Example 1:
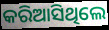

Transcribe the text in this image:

କରିଆସିଥିଲେ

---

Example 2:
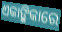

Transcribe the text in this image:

ଏକାଙ୍କିକାରେ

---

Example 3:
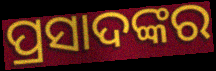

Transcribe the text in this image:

ପ୍ରସାଦଙ୍କର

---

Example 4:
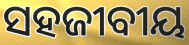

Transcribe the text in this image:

ସହଜୀବୀୟ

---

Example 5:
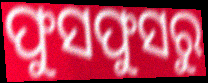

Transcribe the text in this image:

ଫୁସଫୁସରୁ